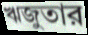
ঋজুতার